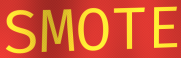
SMOTE